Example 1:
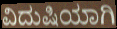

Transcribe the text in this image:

ವಿದುಷಿಯಾಗಿ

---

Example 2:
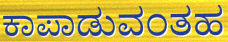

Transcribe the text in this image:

ಕಾಪಾಡುವಂತಹ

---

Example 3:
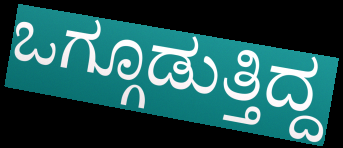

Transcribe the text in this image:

ಒಗ್ಗೂಡುತ್ತಿದ್ದ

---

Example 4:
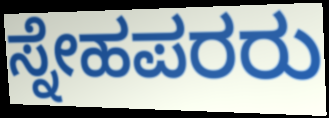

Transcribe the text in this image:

ಸ್ನೇಹಪರರು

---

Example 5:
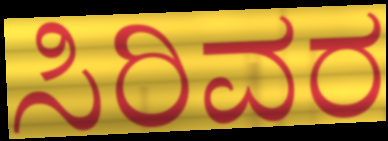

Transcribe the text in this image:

ಸಿರಿವರ